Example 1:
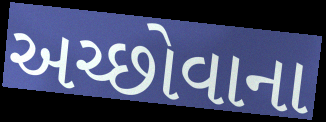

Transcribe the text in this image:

અચ્છોવાના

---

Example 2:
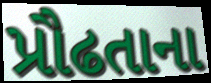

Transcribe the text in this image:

પ્રૌઢતાના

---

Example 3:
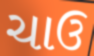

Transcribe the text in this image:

ચાઉ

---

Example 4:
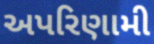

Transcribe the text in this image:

અપરિણામી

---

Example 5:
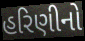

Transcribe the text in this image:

હરિણીનો